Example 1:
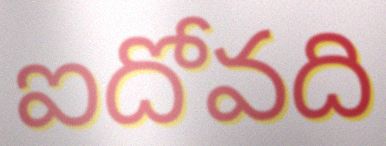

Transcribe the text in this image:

ఐదోవది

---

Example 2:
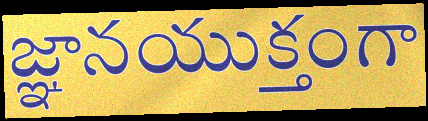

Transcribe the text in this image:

జ్ఞానయుక్తంగా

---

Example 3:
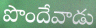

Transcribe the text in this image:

పొందేవాడు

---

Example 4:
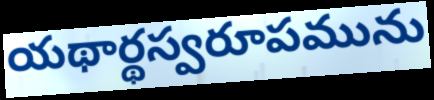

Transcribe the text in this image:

యథార్థస్వరూపమును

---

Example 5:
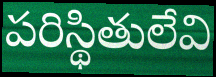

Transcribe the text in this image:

పరిస్థితులేవి